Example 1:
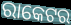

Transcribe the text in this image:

ରାକେଟର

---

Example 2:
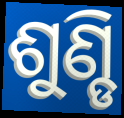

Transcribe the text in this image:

ଶୁଣ୍ଡି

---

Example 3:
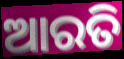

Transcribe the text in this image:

ଆରତି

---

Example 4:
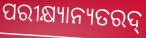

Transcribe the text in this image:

ପରୀକ୍ଷ୍ୟାନ୍ୟତରଦ୍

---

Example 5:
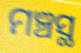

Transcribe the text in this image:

ମଞ୍ଚସ୍ଥ